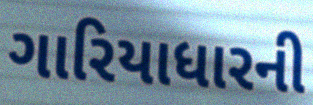
ગારિયાધારની